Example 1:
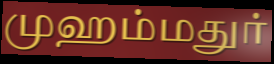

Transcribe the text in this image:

முஹம்மதுர்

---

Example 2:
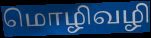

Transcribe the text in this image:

மொழிவழி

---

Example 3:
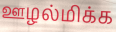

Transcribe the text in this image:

ஊழல்மிக்க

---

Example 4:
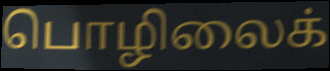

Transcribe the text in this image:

பொழிலைக்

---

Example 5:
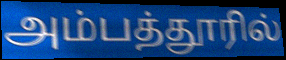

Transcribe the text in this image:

அம்பத்தூரில்